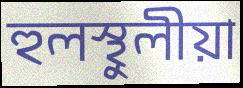
হুলস্থুলীয়া